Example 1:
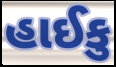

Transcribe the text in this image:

હાઈકુ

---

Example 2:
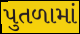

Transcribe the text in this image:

પુતળામાં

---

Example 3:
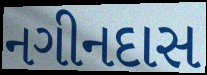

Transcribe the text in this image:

નગીનદાસ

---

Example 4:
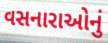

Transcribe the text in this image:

વસનારાઓનું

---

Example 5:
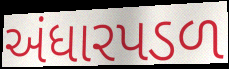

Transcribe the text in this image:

અંધારપડળ